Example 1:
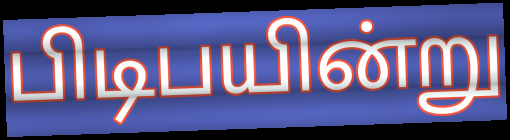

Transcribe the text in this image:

பிடிபயின்று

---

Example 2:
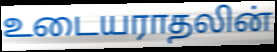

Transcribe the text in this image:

உடையராதலின்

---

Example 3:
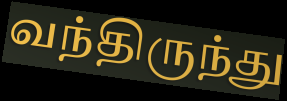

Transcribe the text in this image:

வந்திருந்து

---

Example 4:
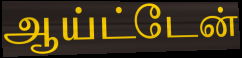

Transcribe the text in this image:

ஆய்ட்டேன்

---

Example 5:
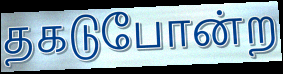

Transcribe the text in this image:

தகடுபோன்ற